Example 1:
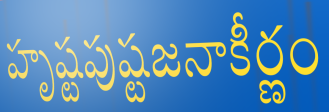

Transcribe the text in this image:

హృష్టపుష్టజనాకీర్ణం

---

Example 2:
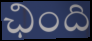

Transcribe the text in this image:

ఛింది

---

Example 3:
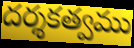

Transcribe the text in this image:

దర్శకత్వము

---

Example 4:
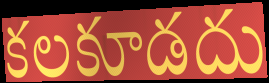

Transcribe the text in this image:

కలకూడదు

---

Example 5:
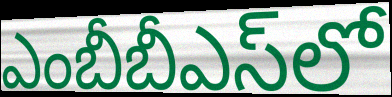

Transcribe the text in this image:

ఎంబీబీఎస్‌లో